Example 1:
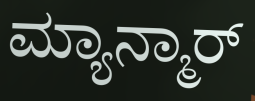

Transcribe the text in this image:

ಮ್ಯಾನ್ಮಾರ್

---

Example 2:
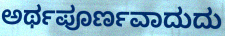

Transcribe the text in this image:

ಅರ್ಥಪೂರ್ಣವಾದುದು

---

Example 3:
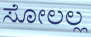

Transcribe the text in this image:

ಸೋಲಲ್ಲ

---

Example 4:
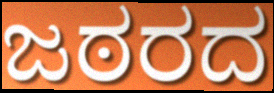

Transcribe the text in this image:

ಜಠರದ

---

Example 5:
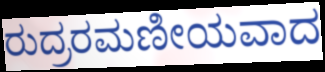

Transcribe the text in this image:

ರುದ್ರರಮಣೀಯವಾದ